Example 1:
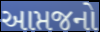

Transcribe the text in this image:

આપ્તજનો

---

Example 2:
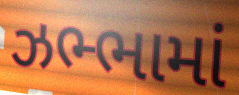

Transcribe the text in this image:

ઝભ્ભામાં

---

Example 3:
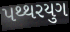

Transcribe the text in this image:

પથ્થરયુગ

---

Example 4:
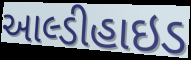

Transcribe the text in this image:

આલ્ડીહાઇડ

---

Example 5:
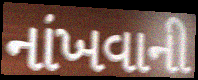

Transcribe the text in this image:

નાંખવાની